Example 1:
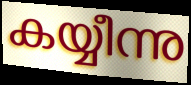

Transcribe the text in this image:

കയ്യീന്നു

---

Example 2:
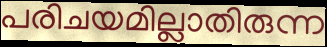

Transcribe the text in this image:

പരിചയമില്ലാതിരുന്ന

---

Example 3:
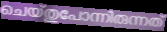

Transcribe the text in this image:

ചെയ്തുപോന്നിരുന്നത്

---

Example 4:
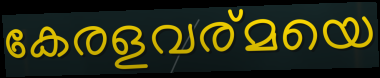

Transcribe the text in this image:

കേരളവര്മയെ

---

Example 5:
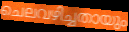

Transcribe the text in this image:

ചെലവഴിച്ചതായും